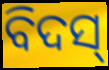
ବିଦସ୍